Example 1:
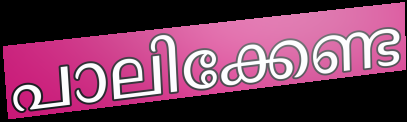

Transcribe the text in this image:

പാലിക്കേണ്ട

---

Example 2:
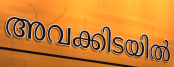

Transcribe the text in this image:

അവക്കിടയിൽ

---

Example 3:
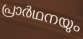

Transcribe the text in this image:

പ്രാർഥനയും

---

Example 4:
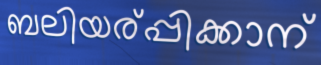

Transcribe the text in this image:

ബലിയര്പ്പിക്കാന്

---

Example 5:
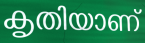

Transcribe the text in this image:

കൃതിയാണ്